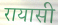
रायासी